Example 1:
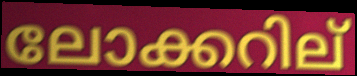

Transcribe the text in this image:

ലോക്കറില്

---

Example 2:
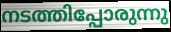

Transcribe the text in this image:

നടത്തിപ്പോരുന്നു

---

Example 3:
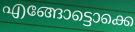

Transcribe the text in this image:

എങ്ങോട്ടൊക്കെ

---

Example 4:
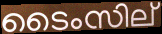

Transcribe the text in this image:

ടൈംസില്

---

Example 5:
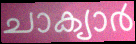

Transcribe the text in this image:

ചാക്യാർ